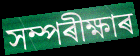
সম্পৰীক্ষাৰ